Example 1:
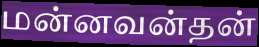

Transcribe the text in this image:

மன்னவன்தன்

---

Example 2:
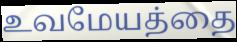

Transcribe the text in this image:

உவமேயத்தை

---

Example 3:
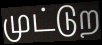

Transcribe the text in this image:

முட்டுற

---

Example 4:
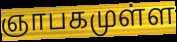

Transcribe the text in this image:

ஞாபகமுள்ள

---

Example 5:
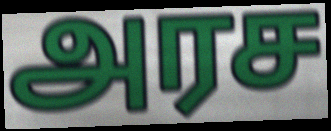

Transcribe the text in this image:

அரச